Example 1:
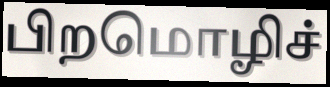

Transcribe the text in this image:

பிறமொழிச்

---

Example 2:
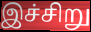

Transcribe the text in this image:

இச்சிறு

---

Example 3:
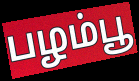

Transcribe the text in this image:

பழம்பூ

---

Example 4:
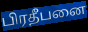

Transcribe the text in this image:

பிரதீபனை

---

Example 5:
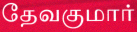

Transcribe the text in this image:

தேவகுமார்